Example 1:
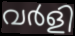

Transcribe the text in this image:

വർളി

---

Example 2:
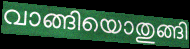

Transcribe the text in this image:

വാങ്ങിയൊതുങ്ങി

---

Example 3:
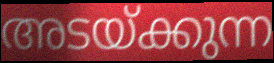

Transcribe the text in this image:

അടയ്ക്കുന്ന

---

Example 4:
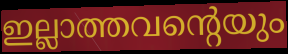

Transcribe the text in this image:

ഇല്ലാത്തവന്റെയും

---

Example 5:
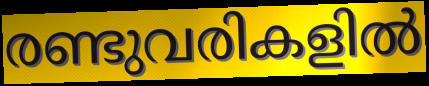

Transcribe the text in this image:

രണ്ടുവരികളിൽ